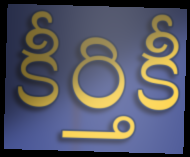
కీర్తికీ